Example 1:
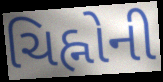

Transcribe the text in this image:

ચિહ્નોની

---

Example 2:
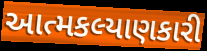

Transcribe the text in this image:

આત્મકલ્યાણકારી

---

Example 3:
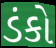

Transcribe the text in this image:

ડંકો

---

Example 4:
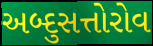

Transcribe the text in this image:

અબ્દુસત્તોરોવ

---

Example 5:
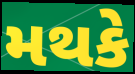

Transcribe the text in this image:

મથકે